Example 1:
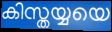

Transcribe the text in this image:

കിസ്തയ്യയെ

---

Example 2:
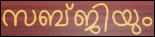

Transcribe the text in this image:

സബ്ജിയും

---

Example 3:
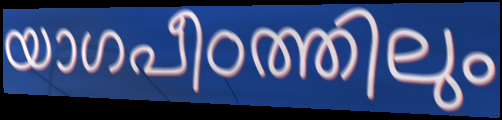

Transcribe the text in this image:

യാഗപീഠത്തിലും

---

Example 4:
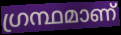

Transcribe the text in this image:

ഗ്രന്ഥമാണ്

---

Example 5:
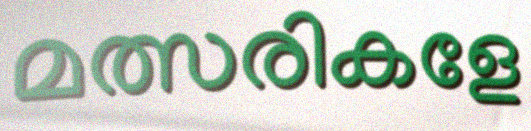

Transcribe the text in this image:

മത്സരികളേ